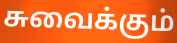
சுவைக்கும்